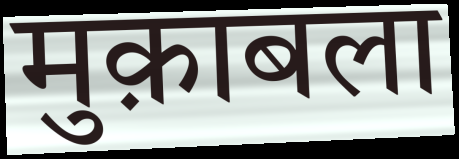
मुक़ाबला